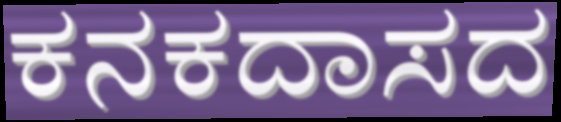
ಕನಕದಾಸದ